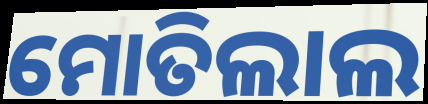
ମୋତିଲାଲ